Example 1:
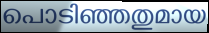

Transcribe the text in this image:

പൊടിഞ്ഞതുമായ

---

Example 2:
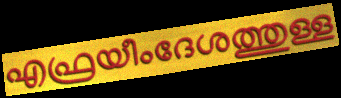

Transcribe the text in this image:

എഫ്രയീംദേശത്തുള്ള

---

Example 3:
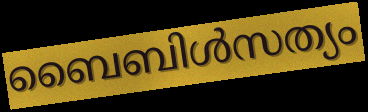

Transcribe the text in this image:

ബൈബിൾസത്യം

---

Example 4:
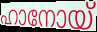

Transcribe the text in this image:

ഹാനോയ്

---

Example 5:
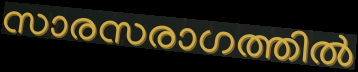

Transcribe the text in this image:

സാരസരാഗത്തിൽ